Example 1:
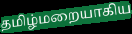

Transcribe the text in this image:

தமிழ்மறையாகிய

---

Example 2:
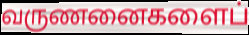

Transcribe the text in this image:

வருணனைகளைப்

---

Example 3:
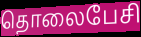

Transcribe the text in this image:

தொலைபேசி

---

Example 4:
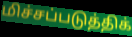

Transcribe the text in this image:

மிச்சப்படுத்திக்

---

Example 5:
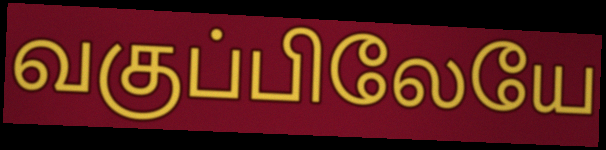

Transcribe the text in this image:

வகுப்பிலேயே